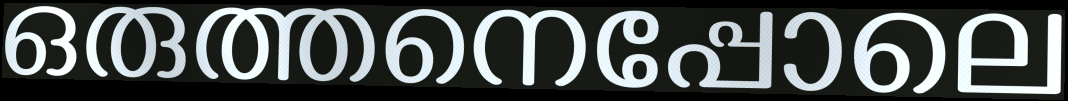
ഒരുത്തനെപ്പോലെ